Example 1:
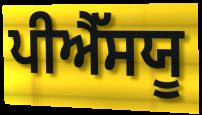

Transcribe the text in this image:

ਪੀਐੱਸਯੂ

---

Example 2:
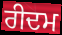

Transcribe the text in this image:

ਰੀਦਮ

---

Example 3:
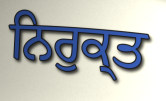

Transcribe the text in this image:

ਨਿਰੁਕ੍ਤ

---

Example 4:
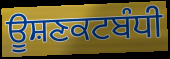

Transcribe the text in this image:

ਊਸ਼ਣਕਟਬੰਧੀ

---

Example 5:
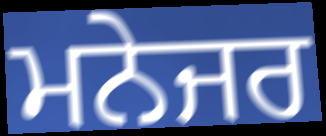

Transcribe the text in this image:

ਮਨੇਜਰ